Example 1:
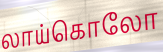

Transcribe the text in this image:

லாய்கொலோ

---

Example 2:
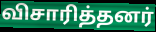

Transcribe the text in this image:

விசாரித்தனர்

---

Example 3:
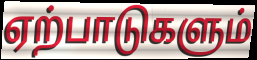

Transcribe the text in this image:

ஏற்பாடுகளும்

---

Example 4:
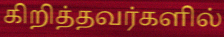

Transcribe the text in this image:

கிறித்தவர்களில்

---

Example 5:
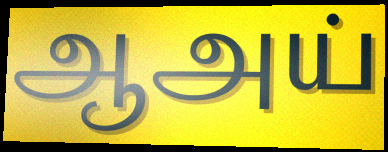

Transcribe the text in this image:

ஆஅய்